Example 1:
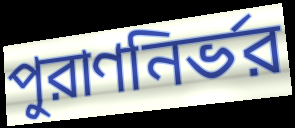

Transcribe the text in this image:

পুরাণনির্ভর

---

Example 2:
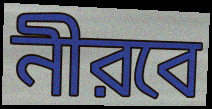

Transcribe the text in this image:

নীরবে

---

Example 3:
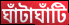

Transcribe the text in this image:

ঘাঁটাঘাঁটি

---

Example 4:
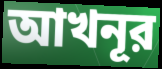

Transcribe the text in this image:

আখনূর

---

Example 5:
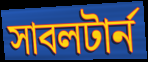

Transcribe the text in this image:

সাবলটার্ন